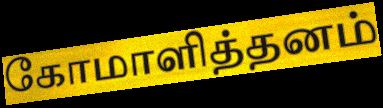
கோமாளித்தனம்